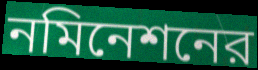
নমিনেশনের